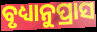
ବୃଧ୍ୟାନୁପ୍ରାସ